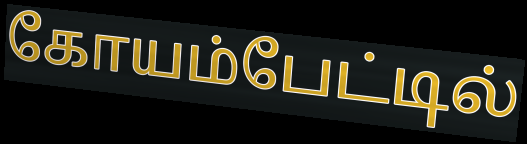
கோயம்பேட்டில்